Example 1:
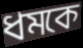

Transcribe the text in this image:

ধমকে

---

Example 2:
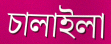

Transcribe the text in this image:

চালাইলা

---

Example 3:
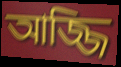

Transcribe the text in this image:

আজ্জি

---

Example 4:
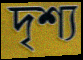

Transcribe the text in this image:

দৃশ্য়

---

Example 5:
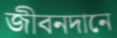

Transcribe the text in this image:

জীবনদানে